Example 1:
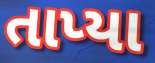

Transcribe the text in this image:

તાપ્યા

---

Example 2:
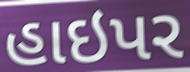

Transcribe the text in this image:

હાઇપર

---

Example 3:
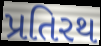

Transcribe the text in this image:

પ્રતિરથ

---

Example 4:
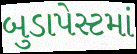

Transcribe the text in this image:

બુડાપેસ્ટમાં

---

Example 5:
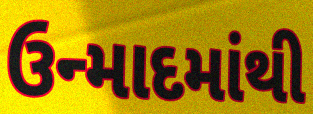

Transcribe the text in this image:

ઉન્માદમાંથી